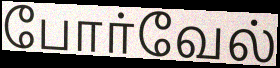
போர்வேல்